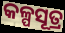
କଳ୍ପସୂତ୍ର